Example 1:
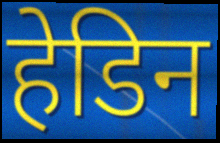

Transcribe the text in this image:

हेडिन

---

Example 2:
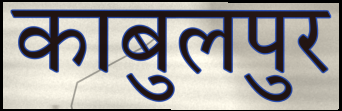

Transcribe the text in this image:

काबुलपुर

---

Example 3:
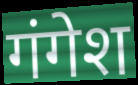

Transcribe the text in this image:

गंगेश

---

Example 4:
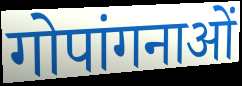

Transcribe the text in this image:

गोपांगनाओं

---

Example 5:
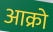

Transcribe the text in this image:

आक्रो